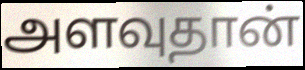
அளவுதான்